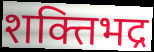
शक्तिभद्र